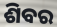
ଶିବର